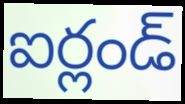
ఐర్లండ్